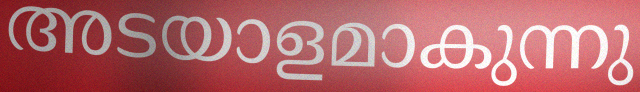
അടയാളമാകുന്നു